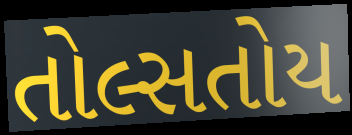
તોલ્સતોય